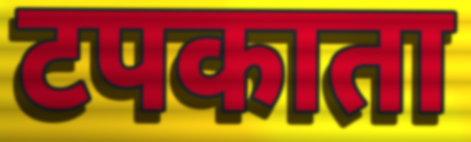
टपकाता